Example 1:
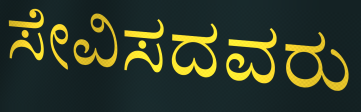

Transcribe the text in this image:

ಸೇವಿಸದವರು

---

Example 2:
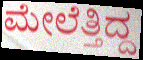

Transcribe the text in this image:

ಮೇಲೆತ್ತಿದ್ದ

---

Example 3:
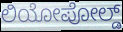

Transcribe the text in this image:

ಲಿಯೋಪೋಲ್ಡ್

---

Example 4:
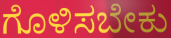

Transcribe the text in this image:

ಗೊಳಿಸಬೇಕು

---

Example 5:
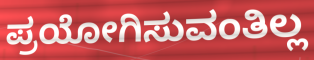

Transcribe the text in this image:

ಪ್ರಯೋಗಿಸುವಂತಿಲ್ಲ